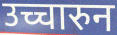
उच्चारुन